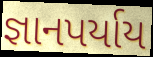
જ્ઞાનપર્યાય